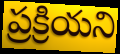
ప్రక్రియని